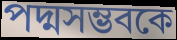
পদ্মসম্ভবকে